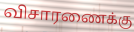
விசாரணைக்கு